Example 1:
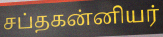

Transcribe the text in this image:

சப்தகன்னியர்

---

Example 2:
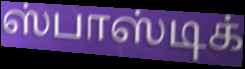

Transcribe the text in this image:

ஸ்பாஸ்டிக்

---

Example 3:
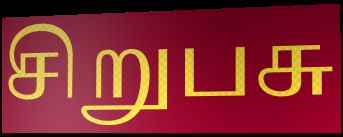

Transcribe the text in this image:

சிறுபசு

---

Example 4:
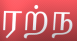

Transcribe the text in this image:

ரற்ந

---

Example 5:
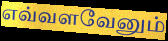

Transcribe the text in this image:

எவ்வளவேனும்